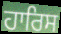
ਹਾਰਿਸ